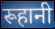
रूहानी